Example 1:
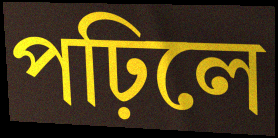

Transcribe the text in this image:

পঢ়িলে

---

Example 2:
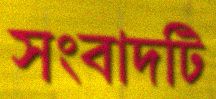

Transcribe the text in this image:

সংবাদটি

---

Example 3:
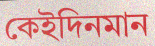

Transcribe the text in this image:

কেইদিনমান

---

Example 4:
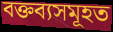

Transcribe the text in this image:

বক্তব্যসমূহত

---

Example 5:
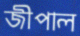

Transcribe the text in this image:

জীপাল